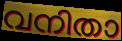
വനിതാ